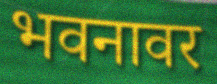
भवनावर